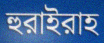
হুরাইরাহ